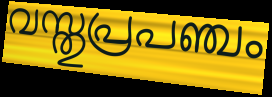
വസ്തുപ്രപഞ്ചം